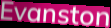
Evanston